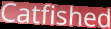
Catfished